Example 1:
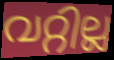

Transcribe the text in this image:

വറ്റില്ല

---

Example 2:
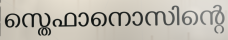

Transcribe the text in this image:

സ്തെഫാനൊസിന്റെ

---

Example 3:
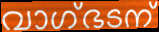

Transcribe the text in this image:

വാഗ്ഭടന്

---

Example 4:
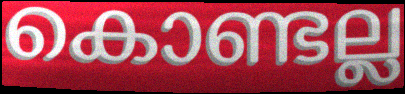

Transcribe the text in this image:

കൊണ്ടല്ല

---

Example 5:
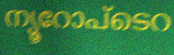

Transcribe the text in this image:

ന്യൂറോപ്ടെറ